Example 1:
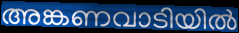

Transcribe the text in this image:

അങ്കണവാടിയിൽ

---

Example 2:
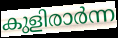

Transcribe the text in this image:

കുളിരാർന്ന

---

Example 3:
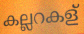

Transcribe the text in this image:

കല്ലറകള്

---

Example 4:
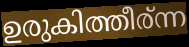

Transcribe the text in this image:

ഉരുകിത്തീര്ന്ന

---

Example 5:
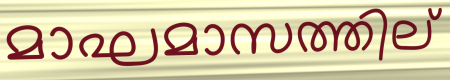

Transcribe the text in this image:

മാഘമാസത്തില്